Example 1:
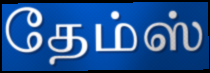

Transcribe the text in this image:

தேம்ஸ்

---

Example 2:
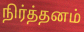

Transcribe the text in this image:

நிர்த்தனம்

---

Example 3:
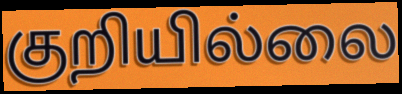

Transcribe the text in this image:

குறியில்லை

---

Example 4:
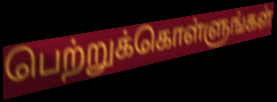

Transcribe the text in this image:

பெற்றுக்கொள்ளுங்கள்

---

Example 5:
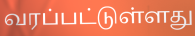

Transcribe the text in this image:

வரப்பட்டுள்ளது